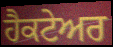
ਹੈਕਟੇਅਰ